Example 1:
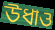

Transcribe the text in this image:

উধাও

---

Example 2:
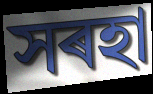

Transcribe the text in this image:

সৰহা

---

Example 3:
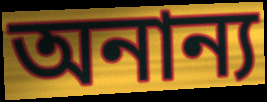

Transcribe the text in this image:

অনান্য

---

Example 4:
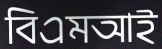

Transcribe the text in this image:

বিএমআই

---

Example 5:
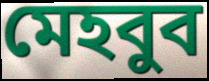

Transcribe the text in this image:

মেহবুব